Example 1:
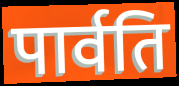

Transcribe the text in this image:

पार्वति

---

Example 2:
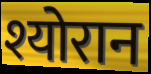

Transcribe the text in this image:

श्योरान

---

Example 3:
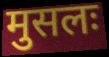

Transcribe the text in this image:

मुसलः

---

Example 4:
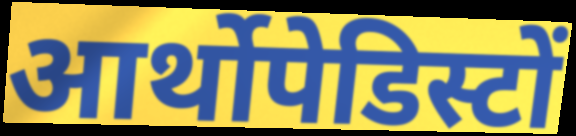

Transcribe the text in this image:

आर्थोपेडिस्टों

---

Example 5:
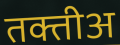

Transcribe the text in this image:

तक्तीअ